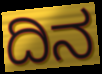
ದಿನ